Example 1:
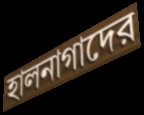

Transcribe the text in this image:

হালনাগাদের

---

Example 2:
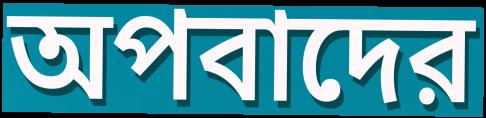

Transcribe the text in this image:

অপবাদের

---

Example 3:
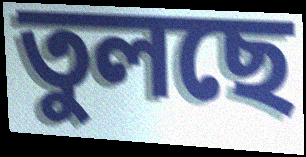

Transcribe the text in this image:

তুলছে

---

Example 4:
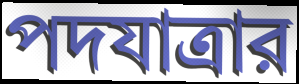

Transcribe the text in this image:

পদযাত্রার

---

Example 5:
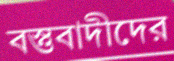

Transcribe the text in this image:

বস্তুবাদীদের